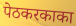
पेठकरकाका